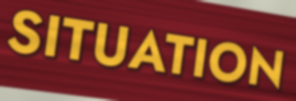
SITUATION